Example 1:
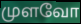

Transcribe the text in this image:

முளவோ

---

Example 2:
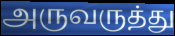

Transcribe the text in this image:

அருவருத்து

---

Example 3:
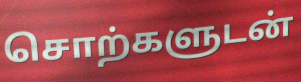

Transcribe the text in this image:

சொற்களுடன்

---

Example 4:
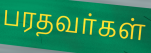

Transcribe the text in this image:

பரதவர்கள்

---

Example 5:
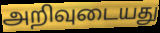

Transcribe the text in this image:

அறிவுடையது